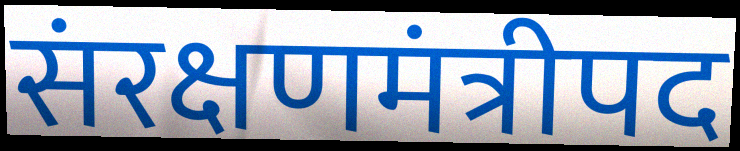
संरक्षणमंत्रीपद